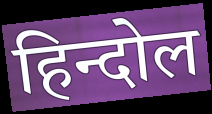
हिन्दोल